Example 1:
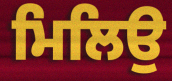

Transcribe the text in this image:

ਮਿਲਿਉ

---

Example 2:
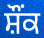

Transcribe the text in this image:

ਸ਼ੌਂਕ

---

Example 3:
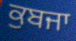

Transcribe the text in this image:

ਕੁਬਜਾ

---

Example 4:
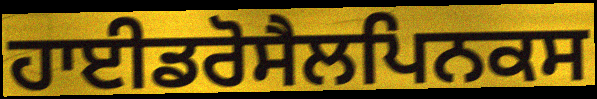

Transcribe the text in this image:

ਹਾਈਡਰੋਸੈਲਪਿਨਕਸ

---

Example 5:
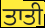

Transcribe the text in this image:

ਤਾਤੀ